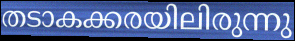
തടാകക്കരയിലിരുന്നു